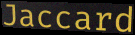
Jaccard